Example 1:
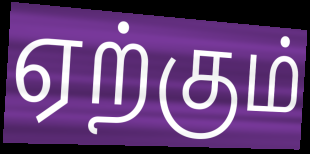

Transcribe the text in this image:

ஏற்கும்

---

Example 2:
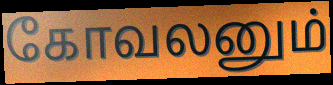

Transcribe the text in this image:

கோவலனும்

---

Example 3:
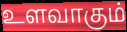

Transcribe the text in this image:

உளவாகும்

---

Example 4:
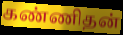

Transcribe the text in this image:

கண்ணிதன்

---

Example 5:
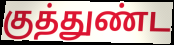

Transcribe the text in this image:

குத்துண்ட